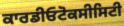
ਕਾਰਡੀਓਟੋਕਸੀਸਿਟੀ